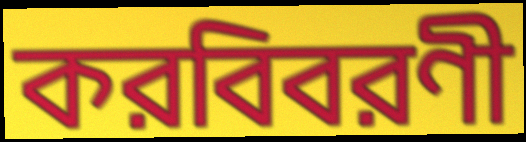
করবিবরণী